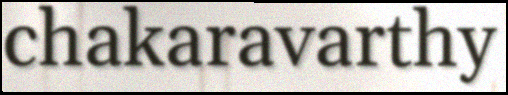
chakaravarthy